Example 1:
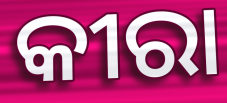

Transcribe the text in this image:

କୀରା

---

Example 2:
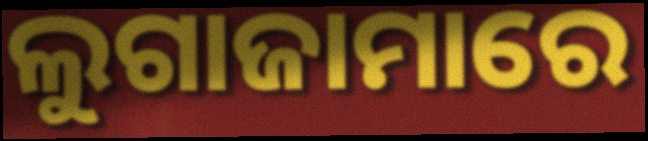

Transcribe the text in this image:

ଲୁଗାଜାମାରେ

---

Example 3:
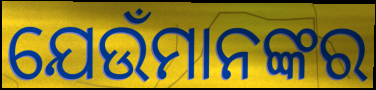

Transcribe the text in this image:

ଯେଉଁମାନଙ୍କର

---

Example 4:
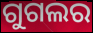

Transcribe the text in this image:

ଗୁଗଲର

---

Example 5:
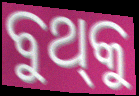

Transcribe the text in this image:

ବୁଥ୍‌କୁ